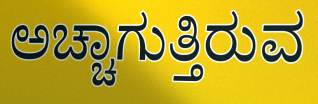
ಅಚ್ಚಾಗುತ್ತಿರುವ